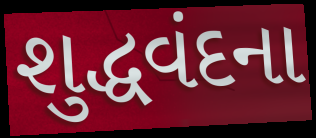
શુદ્ધવંદના